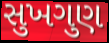
સુખગુણ